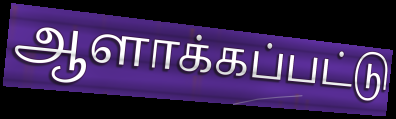
ஆளாக்கப்பட்டு